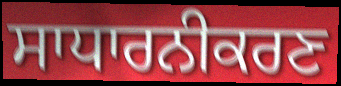
ਸਾਧਾਰਨੀਕਰਣ